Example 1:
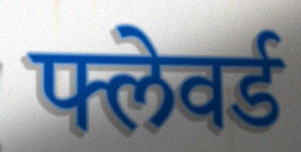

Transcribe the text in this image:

फ्लेवर्ड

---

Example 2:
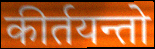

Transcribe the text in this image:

कीर्तयन्तो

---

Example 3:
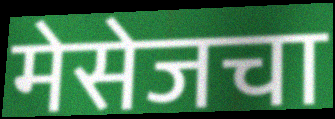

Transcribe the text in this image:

मेसेजचा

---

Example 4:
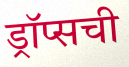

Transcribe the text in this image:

ड्रॉप्सची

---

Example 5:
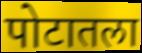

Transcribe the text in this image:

पोटातला